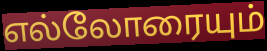
எல்லோரையும்